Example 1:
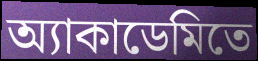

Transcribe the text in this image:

অ্যাকাডেমিতে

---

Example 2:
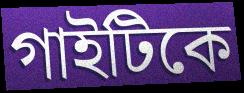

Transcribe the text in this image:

গাইটিকে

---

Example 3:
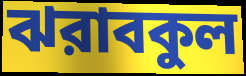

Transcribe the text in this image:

ঝরাবকুল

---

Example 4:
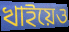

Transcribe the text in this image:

খাইয়েও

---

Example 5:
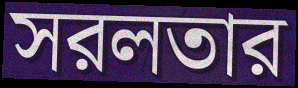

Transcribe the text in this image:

সরলতার